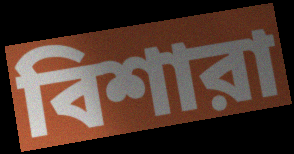
বিশারা